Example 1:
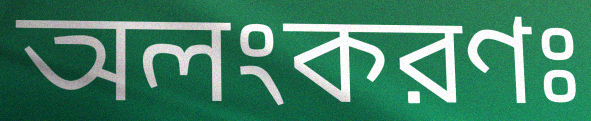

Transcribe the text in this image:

অলংকরণঃ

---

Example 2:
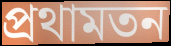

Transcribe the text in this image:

প্রথামতন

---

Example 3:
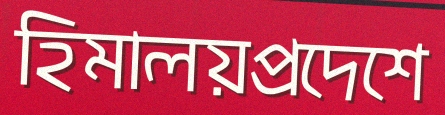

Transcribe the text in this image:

হিমালয়প্রদেশে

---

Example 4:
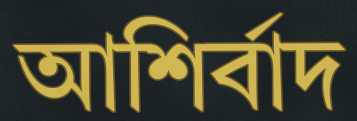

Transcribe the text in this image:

আশির্বাদ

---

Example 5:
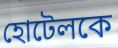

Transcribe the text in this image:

হোটেলকে